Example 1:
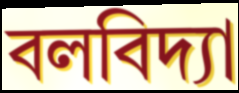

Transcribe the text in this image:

বলবিদ্যা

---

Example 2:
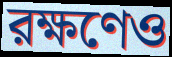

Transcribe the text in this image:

রক্ষণেও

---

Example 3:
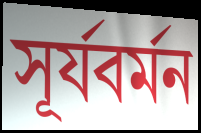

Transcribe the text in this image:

সূর্যবর্মন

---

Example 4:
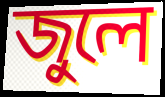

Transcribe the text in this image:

জুলে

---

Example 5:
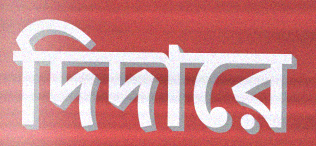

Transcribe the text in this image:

দিদারে